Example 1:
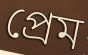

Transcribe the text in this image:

প্রেম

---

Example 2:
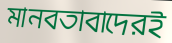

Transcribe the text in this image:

মানবতাবাদেরই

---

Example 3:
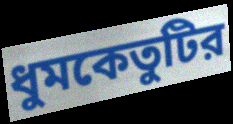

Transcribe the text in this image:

ধুমকেতুটির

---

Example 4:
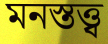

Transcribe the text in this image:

মনস্তত্ত্ব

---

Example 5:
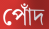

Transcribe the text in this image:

পোঁদ